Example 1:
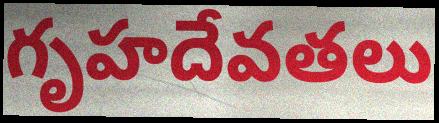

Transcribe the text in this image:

గృహదేవతలు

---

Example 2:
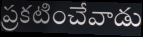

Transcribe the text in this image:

ప్రకటించేవాడు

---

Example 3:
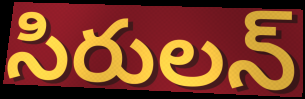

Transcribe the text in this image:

సిరులన్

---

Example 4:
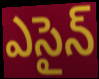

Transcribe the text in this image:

ఎసైన్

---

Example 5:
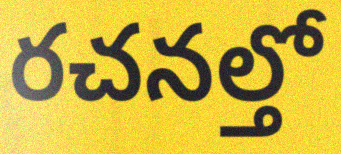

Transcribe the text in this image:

రచనల్తో